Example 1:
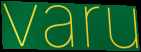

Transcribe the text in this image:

varu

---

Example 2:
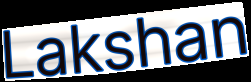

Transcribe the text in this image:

Lakshan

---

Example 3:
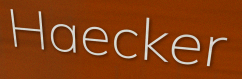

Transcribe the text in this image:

Haecker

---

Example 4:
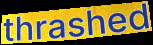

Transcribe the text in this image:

thrashed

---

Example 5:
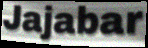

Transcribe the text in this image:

Jajabar